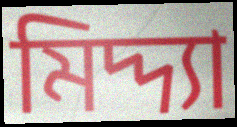
মিদ্দ্যা